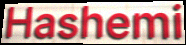
Hashemi